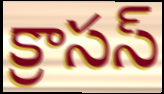
క్రాసస్